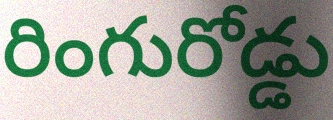
రింగురోడ్డు